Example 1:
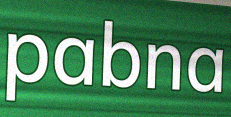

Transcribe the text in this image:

pabna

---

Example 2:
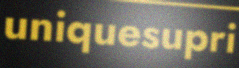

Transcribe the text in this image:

uniquesupri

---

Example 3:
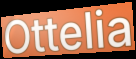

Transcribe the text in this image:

Ottelia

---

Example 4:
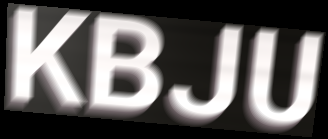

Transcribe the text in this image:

KBJU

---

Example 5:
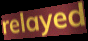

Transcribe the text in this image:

relayed